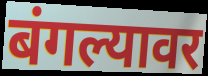
बंगल्यावर